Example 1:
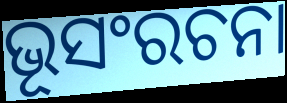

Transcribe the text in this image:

ଭୂସଂରଚନା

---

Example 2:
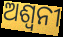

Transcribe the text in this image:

ଅଶ୍ୱନୀ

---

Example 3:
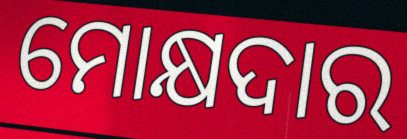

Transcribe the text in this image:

ମୋକ୍ଷଦାର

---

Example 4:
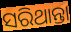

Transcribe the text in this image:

ସରିଥାନ୍ତା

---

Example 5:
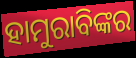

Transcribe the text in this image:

ହାମୁରାବିଙ୍କର